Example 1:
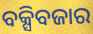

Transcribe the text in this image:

ବକ୍ସିବଜାର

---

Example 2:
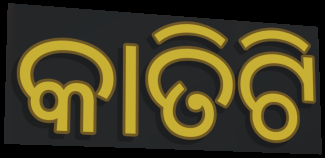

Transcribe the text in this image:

କାତିଟି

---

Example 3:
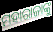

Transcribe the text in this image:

ମହାରାଜାଙ୍କୁ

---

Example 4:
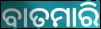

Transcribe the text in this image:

ବାତମାରି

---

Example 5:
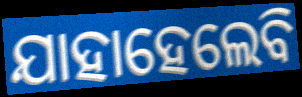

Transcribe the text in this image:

ଯାହାହେଲେବି